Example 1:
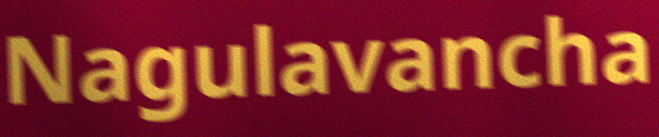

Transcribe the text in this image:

Nagulavancha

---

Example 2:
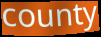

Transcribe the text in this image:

county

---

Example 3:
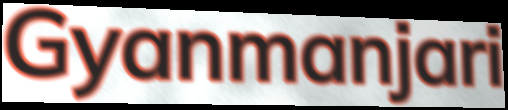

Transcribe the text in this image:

Gyanmanjari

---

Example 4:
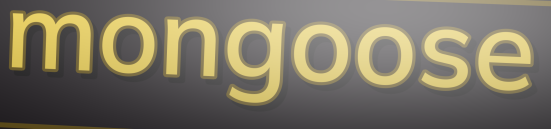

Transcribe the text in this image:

mongoose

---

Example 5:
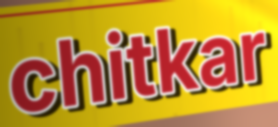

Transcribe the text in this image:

chitkar